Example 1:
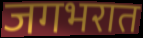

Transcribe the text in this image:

जगभरात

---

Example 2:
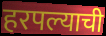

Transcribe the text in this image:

हरपल्याची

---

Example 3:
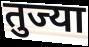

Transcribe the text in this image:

तुज्या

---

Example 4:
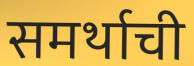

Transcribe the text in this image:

समर्थाची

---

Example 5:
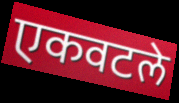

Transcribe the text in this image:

एकवटले